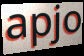
apjo